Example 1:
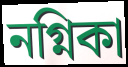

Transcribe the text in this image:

নগ্নিকা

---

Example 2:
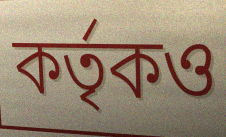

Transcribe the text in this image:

কর্তৃকও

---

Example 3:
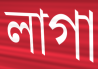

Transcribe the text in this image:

লাগা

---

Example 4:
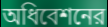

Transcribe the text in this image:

অধিবেশনের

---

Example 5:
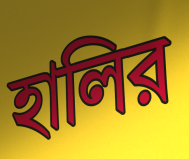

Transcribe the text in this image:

হালির